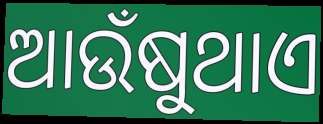
ଆଉଁଷୁଥାଏ